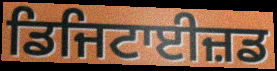
ਡਿਜਿਟਾਈਜ਼ਡ